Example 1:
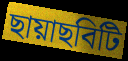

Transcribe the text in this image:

ছায়াছবিটি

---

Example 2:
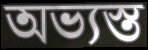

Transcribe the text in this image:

অভ্যস্ত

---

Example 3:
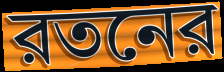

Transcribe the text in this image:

রতনের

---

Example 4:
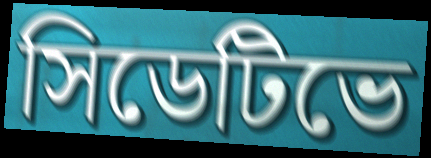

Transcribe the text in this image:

সিডেটিভে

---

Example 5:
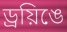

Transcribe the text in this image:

ড্রয়িঙে